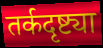
तर्कदृष्ट्या